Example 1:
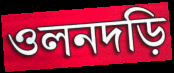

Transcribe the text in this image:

ওলনদড়ি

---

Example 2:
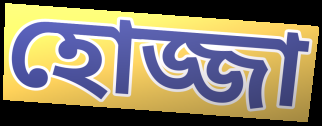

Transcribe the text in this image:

হোজ্জা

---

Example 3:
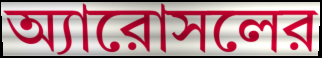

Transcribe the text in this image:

অ্যারোসলের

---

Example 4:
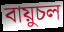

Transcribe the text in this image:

বায়ুচল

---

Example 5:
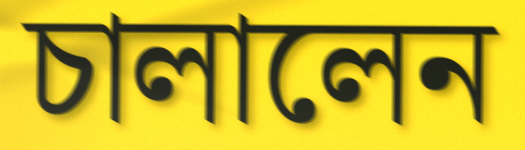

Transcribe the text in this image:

চালালেন